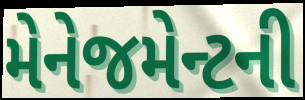
મેનેજમેન્ટની